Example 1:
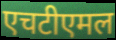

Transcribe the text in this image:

एचटीएमल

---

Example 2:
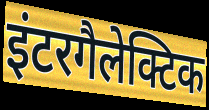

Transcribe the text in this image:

इंटरगैलेक्टिक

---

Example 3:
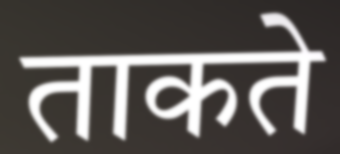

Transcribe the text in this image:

ताकते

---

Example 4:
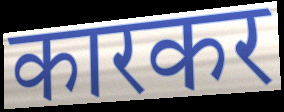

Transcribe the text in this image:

कारकर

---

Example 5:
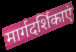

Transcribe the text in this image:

मार्गदर्शिकाएं